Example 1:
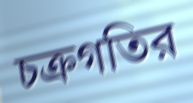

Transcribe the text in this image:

চক্রগতির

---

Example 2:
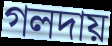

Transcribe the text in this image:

গলদায়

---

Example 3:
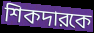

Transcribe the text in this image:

শিকদারকে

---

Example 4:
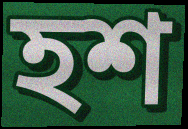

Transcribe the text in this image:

হশ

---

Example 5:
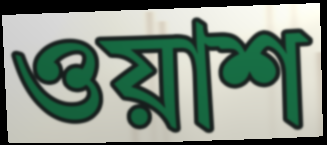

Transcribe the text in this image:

ওয়াশ